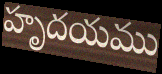
హృదయము